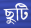
ছুটি